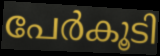
പേർകൂടി